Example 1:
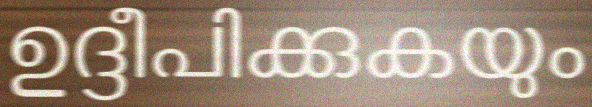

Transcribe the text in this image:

ഉദ്ദീപിക്കുകയും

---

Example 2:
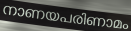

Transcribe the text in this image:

നാണയപരിണാമം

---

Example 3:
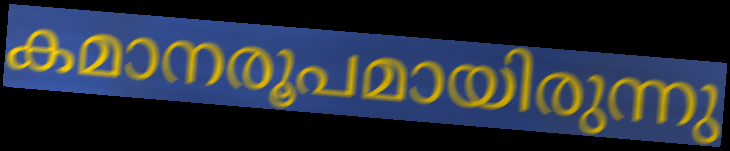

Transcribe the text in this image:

കമാനരൂപമായിരുന്നു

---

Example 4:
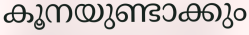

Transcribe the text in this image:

കൂനയുണ്ടാക്കും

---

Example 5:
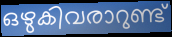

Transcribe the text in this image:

ഒഴുകിവരാറുണ്ട്